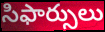
సిఫార్సులు